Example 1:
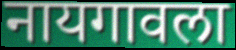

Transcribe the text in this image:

नायगावला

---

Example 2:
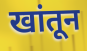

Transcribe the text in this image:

खांतून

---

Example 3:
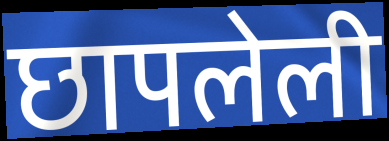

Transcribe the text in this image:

छापलेली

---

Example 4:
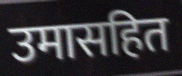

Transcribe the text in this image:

उमासहित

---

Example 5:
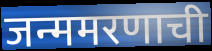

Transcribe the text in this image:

जन्ममरणाची